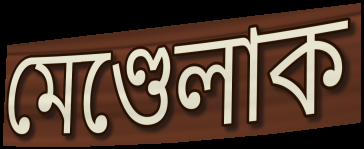
মেণ্ডেলাক